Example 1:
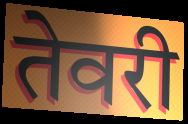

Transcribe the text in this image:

तेवरी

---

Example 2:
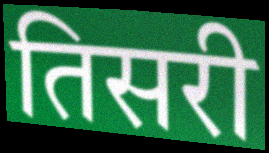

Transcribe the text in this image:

तिसरी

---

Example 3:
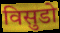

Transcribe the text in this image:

विसुडो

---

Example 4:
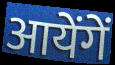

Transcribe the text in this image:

आयेंगें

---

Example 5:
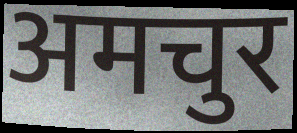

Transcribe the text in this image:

अमचुर